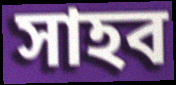
সাহব